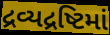
દ્રવ્યદ્રષ્ટિમાં